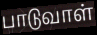
பாடுவாள்